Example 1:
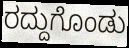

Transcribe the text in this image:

ರದ್ದುಗೊಂಡು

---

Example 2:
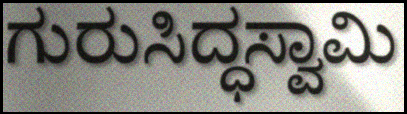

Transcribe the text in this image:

ಗುರುಸಿದ್ಧಸ್ವಾಮಿ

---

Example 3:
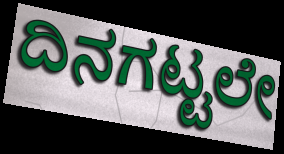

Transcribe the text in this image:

ದಿನಗಟ್ಟಲೇ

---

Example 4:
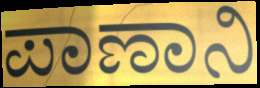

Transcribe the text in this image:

ಪಾಣಾನಿ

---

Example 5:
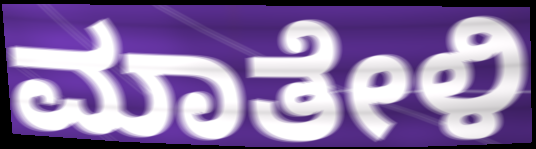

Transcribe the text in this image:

ಮಾತೇಳಿ